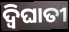
ଦ୍ବିଘାତୀ